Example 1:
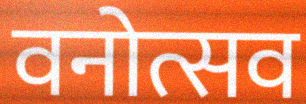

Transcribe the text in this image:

वनोत्सव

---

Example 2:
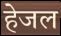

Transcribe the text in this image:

हेजल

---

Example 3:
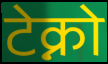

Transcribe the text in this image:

टेक्नो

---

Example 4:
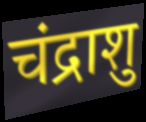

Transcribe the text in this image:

चंद्राशु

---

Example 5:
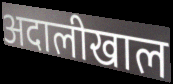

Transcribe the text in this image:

अदालीखाल